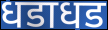
धडाधड